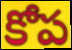
కోప